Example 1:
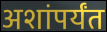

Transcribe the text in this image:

अशांपर्यंत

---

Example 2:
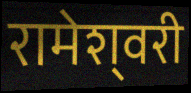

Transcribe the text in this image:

रामेश्वरी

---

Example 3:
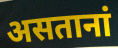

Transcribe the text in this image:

असतानां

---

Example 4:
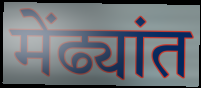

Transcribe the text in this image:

मेंढ्यांत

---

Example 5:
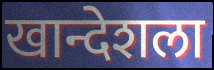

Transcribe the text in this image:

खान्देशला